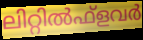
ലിറ്റിൽഫ്ളവർ